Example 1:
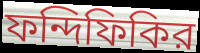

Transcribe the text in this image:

ফন্দিফিকির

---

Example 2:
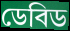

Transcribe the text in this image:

ডেবিড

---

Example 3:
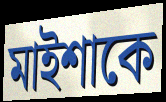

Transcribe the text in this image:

মাইশাকে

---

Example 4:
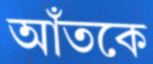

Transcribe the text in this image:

আঁতকে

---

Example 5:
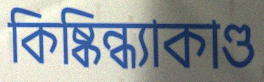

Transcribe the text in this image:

কিষ্কিন্ধ্যাকাণ্ড